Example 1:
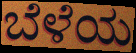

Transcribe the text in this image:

ಬೆಳೆಯ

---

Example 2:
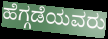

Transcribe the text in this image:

ಹೆಗ್ಗಡೆಯವರು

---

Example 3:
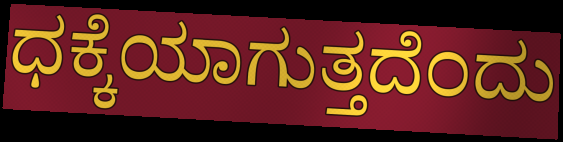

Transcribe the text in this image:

ಧಕ್ಕೆಯಾಗುತ್ತದೆಂದು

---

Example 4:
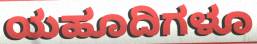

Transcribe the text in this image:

ಯಹೂದಿಗಳೂ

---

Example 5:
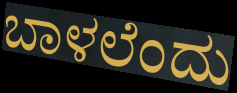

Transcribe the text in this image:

ಬಾಳಲೆಂದು